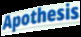
Apothesis